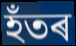
হঁতৰ